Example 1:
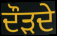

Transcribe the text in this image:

ਦੌੜਦੇ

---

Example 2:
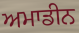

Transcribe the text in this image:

ਅਮਾਡੀਨ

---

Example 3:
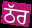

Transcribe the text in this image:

ਠੱਰ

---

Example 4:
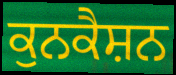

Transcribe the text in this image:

ਕੁਨਕੈਸ਼ਨ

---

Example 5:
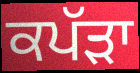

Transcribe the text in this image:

ਕਪੱੜਾ